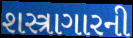
શસ્ત્રાગારની